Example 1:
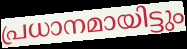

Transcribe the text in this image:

പ്രധാനമായിട്ടും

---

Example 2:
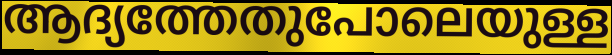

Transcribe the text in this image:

ആദ്യത്തേതുപോലെയുള്ള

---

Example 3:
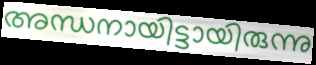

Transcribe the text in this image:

അന്ധനായിട്ടായിരുന്നു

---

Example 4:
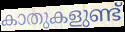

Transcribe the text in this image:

കാതുകളുണ്ട്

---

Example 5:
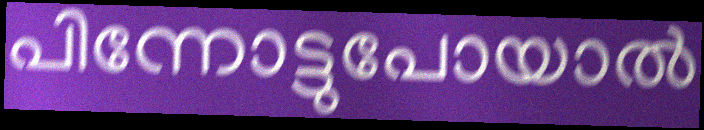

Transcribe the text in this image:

പിന്നോട്ടുപോയാൽ